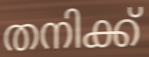
തനിക്ക്